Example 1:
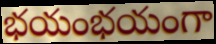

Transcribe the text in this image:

భయంభయంగా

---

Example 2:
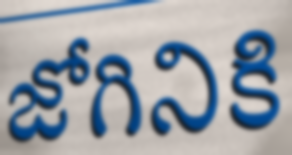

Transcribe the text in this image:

జోగినికి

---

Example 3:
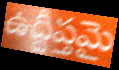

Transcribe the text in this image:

ఉద్దీప్తమై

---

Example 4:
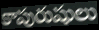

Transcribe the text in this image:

కాపురుషులు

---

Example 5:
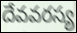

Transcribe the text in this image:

దేవవరస్య